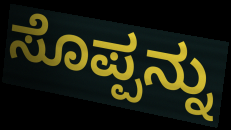
ಸೊಪ್ಪನ್ನು